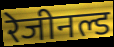
रेजीनल्ड